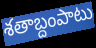
శతాబ్దంపాటు